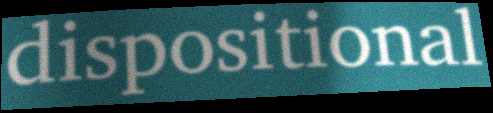
dispositional